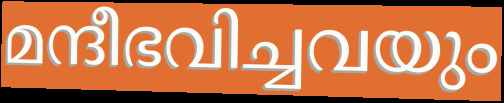
മന്ദീഭവിച്ചവയും